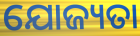
ଯୋଜ୍ୟତା